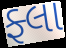
ફ્લા